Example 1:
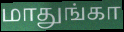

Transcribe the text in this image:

மாதுங்கா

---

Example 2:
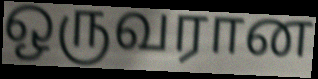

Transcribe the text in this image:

ஒருவரான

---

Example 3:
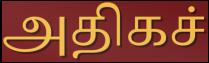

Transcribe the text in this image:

அதிகச்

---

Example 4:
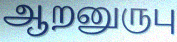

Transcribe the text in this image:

ஆறனுருபு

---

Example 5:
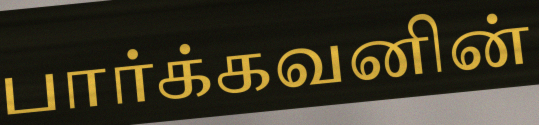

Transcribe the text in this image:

பார்க்கவனின்